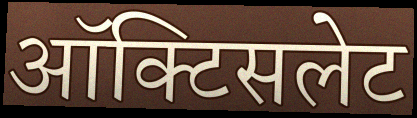
ऑक्टिसलेट